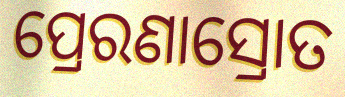
ପ୍ରେରଣାସ୍ରୋତ